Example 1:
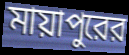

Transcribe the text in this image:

মায়াপুরের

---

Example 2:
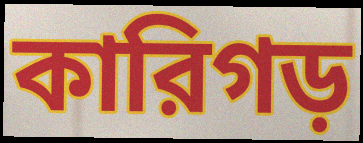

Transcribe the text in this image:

কারিগড়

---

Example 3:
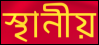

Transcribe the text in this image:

স্থানীয়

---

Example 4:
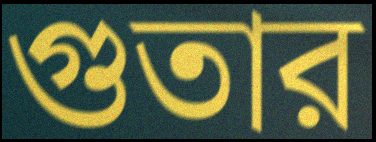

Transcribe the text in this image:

গুতার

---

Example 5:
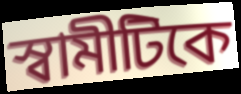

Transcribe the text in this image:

স্বামীটিকে